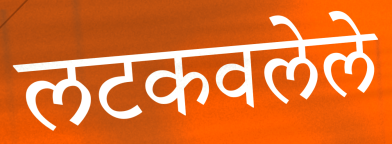
लटकवलेले